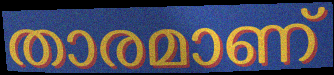
താരമാണ്